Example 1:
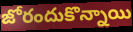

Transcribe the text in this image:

జోరందుకొన్నాయి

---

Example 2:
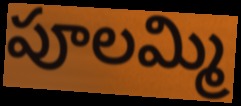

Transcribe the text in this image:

పూలమ్మి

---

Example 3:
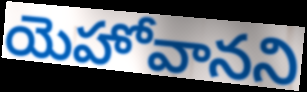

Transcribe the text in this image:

యెహోవానని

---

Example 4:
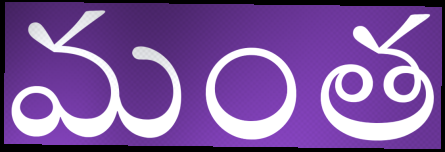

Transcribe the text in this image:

మంత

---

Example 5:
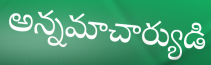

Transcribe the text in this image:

అన్నమాచార్యుడి